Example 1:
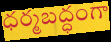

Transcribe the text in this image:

ధర్మబద్ధంగా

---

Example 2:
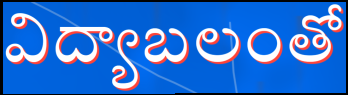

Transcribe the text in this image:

విద్యాబలంతో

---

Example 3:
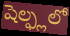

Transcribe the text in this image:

షెల్ఫ్లలో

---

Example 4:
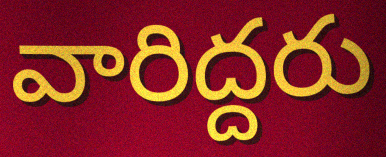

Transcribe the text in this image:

వారిద్దరు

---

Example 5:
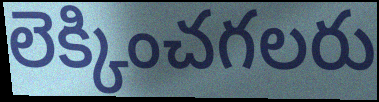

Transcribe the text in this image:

లెక్కించగలరు